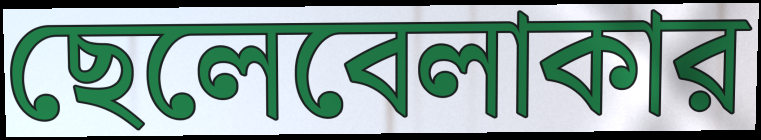
ছেলেবেলাকার